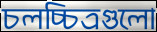
চলচ্চিত্রগুলো